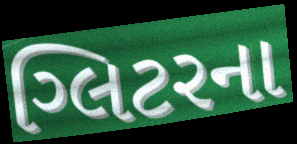
ગ્લિટરના